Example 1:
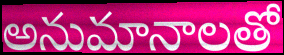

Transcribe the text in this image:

అనుమానాలతో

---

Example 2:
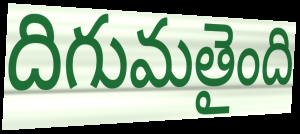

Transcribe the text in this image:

దిగుమతైంది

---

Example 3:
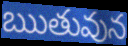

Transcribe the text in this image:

ఋతువున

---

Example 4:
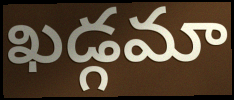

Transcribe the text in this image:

ఖడ్గమా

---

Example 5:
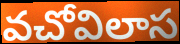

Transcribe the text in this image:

వచోవిలాస